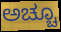
ಅಚ್ಚೂ